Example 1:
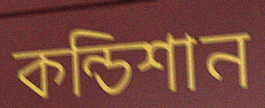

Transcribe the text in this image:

কন্ডিশান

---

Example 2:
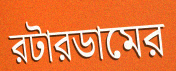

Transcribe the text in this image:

রটারডামের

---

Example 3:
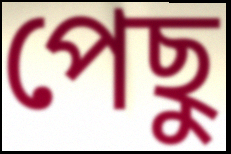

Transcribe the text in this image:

পেছু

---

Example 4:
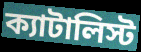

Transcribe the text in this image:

ক্যাটালিস্ট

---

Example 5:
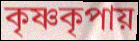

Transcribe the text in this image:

কৃষ্ণকৃপায়